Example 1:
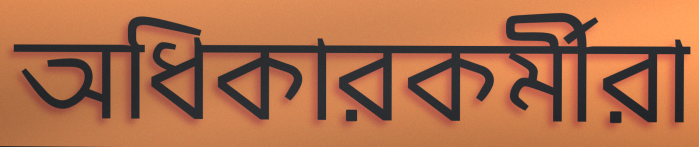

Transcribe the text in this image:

অধিকারকর্মীরা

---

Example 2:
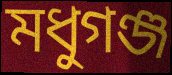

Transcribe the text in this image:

মধুগঞ্জ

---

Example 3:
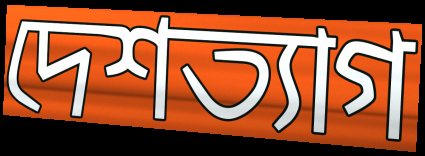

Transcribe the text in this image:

দেশত্যাগ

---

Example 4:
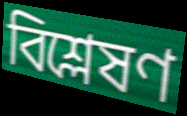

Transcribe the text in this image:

বিশ্লেষণ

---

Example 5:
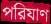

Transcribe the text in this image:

পরিযাণ